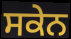
ਸਕੇਨ